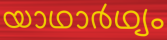
യാഥാർഥ്യം